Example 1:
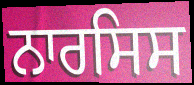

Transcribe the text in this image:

ਨਾਰਸਿਸ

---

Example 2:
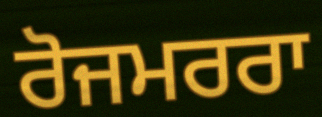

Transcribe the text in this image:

ਰੋਜਮਰਰਾ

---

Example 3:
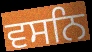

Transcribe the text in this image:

ਵਸਨਿ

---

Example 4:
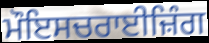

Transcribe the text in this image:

ਮੌਇਸਚਰਾਈਜ਼ਿੰਗ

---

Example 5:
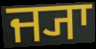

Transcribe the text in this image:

ਜ੍ਯਾ